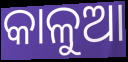
କାଳୁଆ